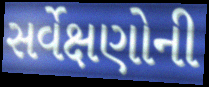
સર્વેક્ષણોની